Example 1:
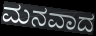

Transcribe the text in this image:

ಮನವಾದ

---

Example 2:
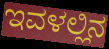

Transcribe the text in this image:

ಇವಳಲ್ಲಿನ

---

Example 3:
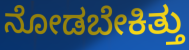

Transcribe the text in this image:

ನೋಡಬೇಕಿತ್ತು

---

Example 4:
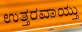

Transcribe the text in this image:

ಉತ್ತರವಾಯ್ತು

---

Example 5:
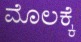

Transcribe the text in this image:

ಮೊಲಕ್ಕೆ